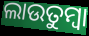
ଲାଉତୁମ୍ବା